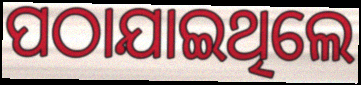
ପଠାଯାଇଥିଲେ